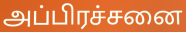
அப்பிரச்சனை